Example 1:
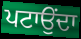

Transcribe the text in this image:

ਪਟਾਉਂਦਾ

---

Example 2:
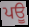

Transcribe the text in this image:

ਪਉੂ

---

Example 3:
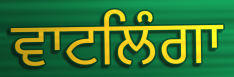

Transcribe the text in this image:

ਵਾਟਲਿੰਗਾ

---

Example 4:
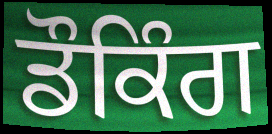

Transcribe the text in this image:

ਡੌਕਿੰਗ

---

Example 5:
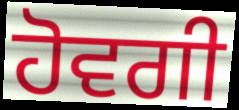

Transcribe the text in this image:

ਹੋਵਗੀ